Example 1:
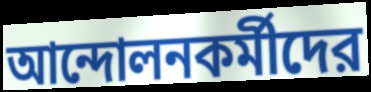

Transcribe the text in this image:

আন্দোলনকর্মীদের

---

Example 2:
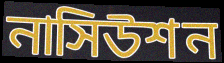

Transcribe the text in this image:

নাসিউশন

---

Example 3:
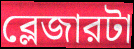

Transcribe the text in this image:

ব্লেজারটা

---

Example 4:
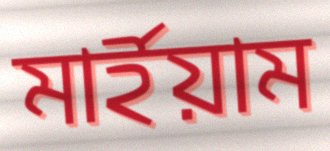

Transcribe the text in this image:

মার্ইয়াম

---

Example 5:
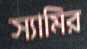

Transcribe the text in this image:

স্যামির